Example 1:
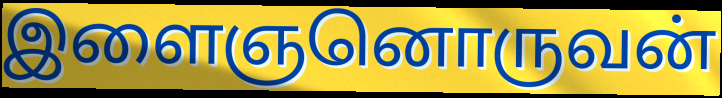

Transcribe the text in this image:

இளைஞனொருவன்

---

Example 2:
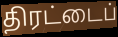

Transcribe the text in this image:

திரட்டைப்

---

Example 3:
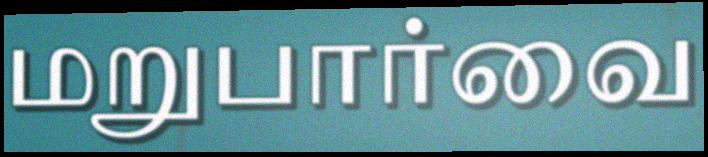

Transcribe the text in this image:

மறுபார்வை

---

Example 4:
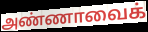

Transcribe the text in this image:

அண்ணாவைக்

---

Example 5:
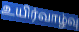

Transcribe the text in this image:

உயிர்வாழ்வு